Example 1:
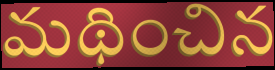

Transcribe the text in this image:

మథించిన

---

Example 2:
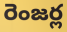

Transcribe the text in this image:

రెంజర్ల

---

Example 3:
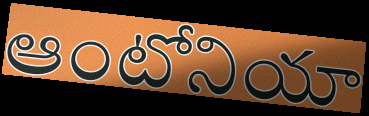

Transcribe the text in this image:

ఆంటోనియా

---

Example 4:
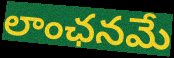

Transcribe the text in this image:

లాంఛనమే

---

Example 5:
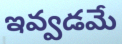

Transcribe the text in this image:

ఇవ్వడమే